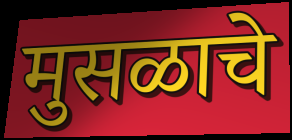
मुसळाचे